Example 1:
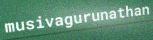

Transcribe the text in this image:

musivagurunathan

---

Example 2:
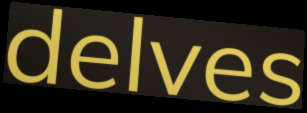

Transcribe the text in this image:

delves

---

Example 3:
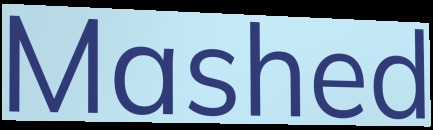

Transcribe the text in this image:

Mashed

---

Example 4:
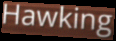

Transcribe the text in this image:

Hawking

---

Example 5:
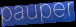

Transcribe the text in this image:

pauper